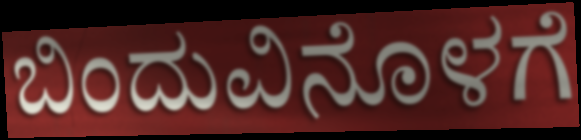
ಬಿಂದುವಿನೊಳಗೆ